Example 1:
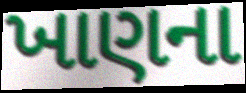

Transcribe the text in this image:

ખાણના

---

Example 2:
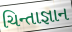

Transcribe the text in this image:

ચિન્તાજ્ઞાન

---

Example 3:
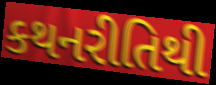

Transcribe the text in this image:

કથનરીતિથી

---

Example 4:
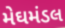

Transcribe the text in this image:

મેઘમંડલ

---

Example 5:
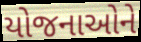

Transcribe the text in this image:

યોજનાઓને